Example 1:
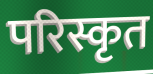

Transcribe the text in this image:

परिस्कृत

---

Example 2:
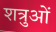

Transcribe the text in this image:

शत्रुओं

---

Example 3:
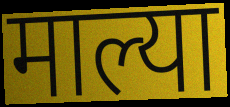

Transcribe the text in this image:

माल्या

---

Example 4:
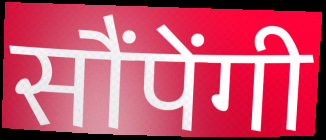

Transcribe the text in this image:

सौंपेंगी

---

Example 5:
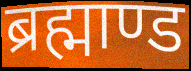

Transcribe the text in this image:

ब्रह्माण्ड